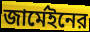
জার্মেইনের